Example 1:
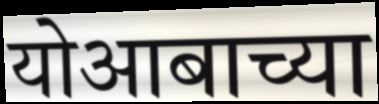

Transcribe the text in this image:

योआबाच्या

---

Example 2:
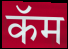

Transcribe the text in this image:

कॅम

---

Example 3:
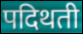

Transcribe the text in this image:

पदिथती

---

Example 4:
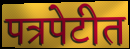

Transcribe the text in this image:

पत्रपेटीत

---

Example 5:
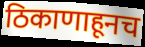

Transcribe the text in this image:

ठिकाणाहूनच